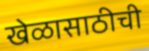
खेळासाठीची